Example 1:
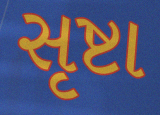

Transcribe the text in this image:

સૃષ્ટા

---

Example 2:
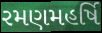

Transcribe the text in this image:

રમણમહર્ષિ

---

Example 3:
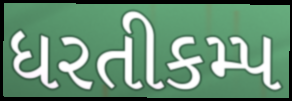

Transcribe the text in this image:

ધરતીકમ્પ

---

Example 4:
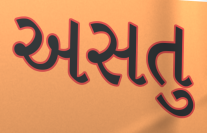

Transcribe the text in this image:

અસતુ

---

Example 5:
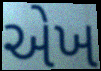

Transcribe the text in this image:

એખ